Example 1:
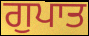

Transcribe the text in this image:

ਗੁਪਾਤ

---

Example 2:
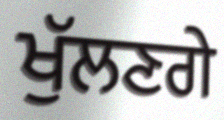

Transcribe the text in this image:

ਖੁੱਲਣਗੇ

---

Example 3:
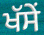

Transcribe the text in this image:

ਖੱਸੇਂ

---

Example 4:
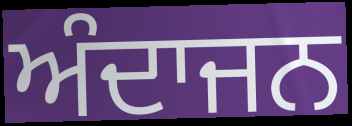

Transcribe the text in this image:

ਅੰਦਾਜਨ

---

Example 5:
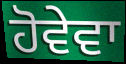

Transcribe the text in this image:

ਹੋਵੇਵਾ